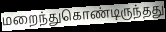
மறைந்துகொண்டிருந்தது